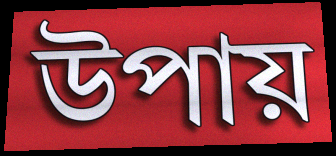
উপায়